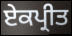
ਏਕਪ੍ਰੀਤ